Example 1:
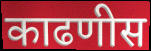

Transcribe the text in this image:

काढणीस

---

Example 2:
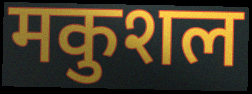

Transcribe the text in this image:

मकुशल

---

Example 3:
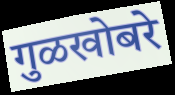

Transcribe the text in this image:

गुळखोबरे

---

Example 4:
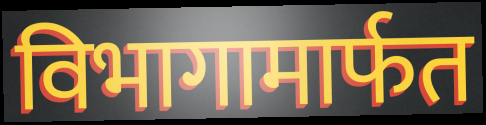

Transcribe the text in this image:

विभागामार्फत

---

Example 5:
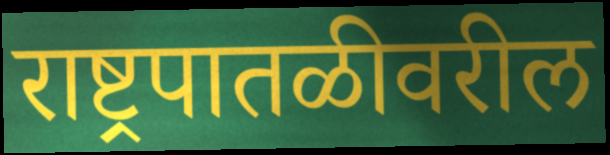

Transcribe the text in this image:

राष्ट्रपातळीवरील